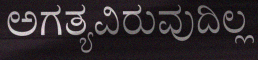
ಅಗತ್ಯವಿರುವುದಿಲ್ಲ